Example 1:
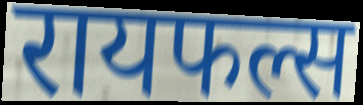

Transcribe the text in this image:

रायफल्स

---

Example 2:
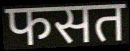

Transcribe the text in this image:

फसत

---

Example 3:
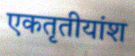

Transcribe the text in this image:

एकतृतीयांश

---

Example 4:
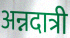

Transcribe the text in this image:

अन्नदात्री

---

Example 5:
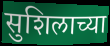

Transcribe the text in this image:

सुशिलाच्या